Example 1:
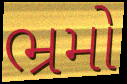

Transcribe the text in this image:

ભ્રમો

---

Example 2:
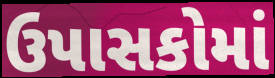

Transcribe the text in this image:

ઉપાસકોમાં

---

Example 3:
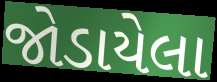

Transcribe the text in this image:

જોડાયેલા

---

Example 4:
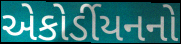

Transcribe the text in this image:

એકોર્ડીયનનો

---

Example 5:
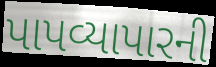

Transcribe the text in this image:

પાપવ્યાપારની